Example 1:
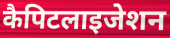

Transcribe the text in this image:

कैपिटलाइजेशन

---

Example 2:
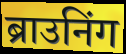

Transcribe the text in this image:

ब्राउनिंग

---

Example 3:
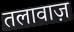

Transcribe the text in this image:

तलावाज़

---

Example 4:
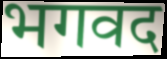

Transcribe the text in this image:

भगवद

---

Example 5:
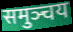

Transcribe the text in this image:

समुञ्चय